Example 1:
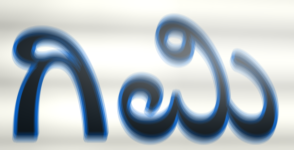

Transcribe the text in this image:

ಗಿಮಿ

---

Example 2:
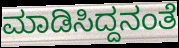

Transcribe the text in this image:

ಮಾಡಿಸಿದ್ದನಂತೆ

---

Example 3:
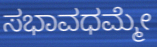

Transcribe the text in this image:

ಸಭಾವಧಮ್ಮೇ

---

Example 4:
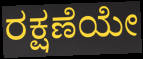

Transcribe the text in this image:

ರಕ್ಷಣೆಯೇ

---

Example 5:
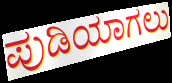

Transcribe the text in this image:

ಪುಡಿಯಾಗಲು